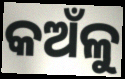
କଅଁଳୁ